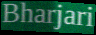
Bharjari